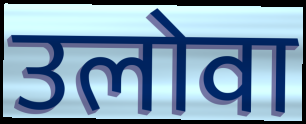
उलोवा